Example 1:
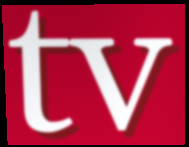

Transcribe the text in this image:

tv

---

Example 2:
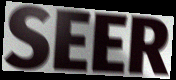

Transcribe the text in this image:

SEER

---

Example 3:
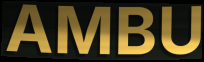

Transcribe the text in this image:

AMBU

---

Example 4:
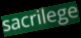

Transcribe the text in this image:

sacrilege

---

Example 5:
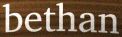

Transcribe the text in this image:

bethan